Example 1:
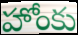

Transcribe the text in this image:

హోంకు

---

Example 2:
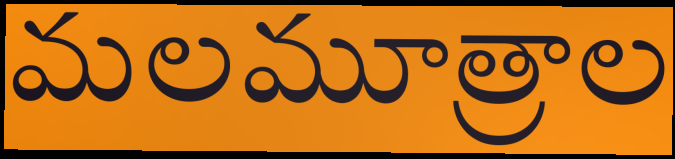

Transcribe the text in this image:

మలమూత్రాల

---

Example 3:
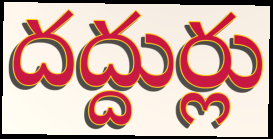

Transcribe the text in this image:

దద్దుర్లు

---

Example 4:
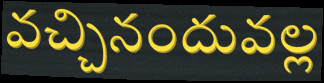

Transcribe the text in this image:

వచ్చినందువల్ల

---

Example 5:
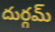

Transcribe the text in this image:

దుర్గమ్